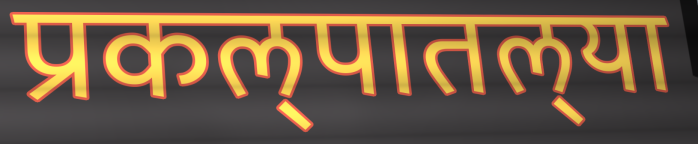
प्रकल्पातल्या